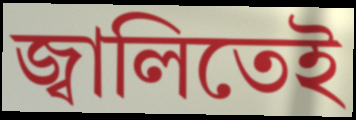
জ্বালিতেই